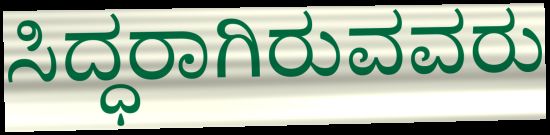
ಸಿದ್ಧರಾಗಿರುವವರು